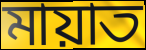
মায়াত